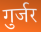
गुर्जर